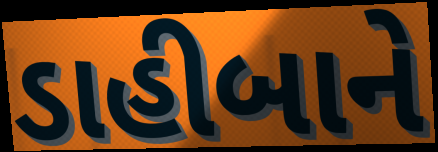
ડાહીબાને